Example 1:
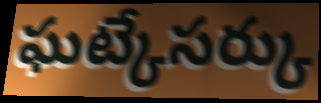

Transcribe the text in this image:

ఘట్కేసర్కు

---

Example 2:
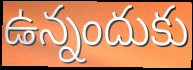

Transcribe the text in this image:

ఉన్నందుకు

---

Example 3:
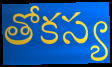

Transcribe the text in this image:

తోకస్య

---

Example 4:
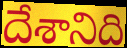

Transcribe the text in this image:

దేశానిది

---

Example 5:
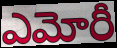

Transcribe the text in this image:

ఎమోరీ